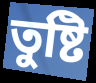
তুষ্টি